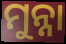
ମୁନ୍ନା